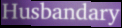
Husbandary